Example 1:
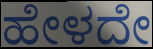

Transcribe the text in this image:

ಹೇಳದೇ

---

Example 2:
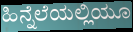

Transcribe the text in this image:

ಹಿನ್ನೆಲೆಯಲ್ಲಿಯೂ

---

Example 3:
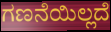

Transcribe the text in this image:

ಗಣನೆಯಿಲ್ಲದೆ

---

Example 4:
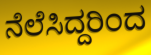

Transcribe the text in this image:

ನೆಲೆಸಿದ್ದರಿಂದ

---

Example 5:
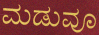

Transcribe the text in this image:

ಮಡುವೂ